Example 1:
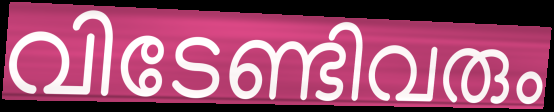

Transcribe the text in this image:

വിടേണ്ടിവരും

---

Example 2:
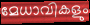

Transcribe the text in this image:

മേധാവികളും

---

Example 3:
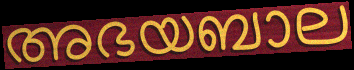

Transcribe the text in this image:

അഭയബാല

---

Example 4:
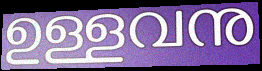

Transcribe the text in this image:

ഉള്ളവനു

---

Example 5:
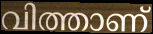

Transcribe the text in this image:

വിത്താണ്